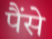
पैंसे